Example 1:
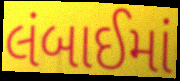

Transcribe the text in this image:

લંબાઈમાં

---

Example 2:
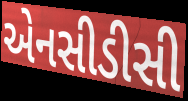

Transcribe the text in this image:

એનસીડીસી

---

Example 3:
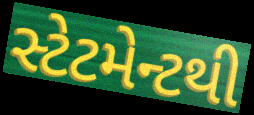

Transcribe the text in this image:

સ્ટેટમેન્ટથી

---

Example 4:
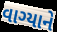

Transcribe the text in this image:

વાગ્યાને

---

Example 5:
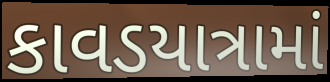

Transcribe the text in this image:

કાવડયાત્રામાં